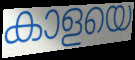
കാളയെ